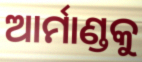
ଆର୍ମାଣ୍ଡକୁ